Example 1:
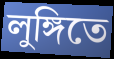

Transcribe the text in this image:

লুঙ্গিতে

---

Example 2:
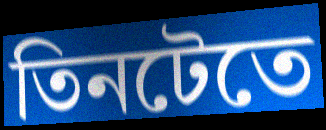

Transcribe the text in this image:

তিনটেতে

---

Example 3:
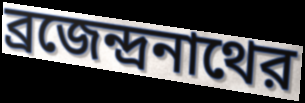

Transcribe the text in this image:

ব্রজেন্দ্রনাথের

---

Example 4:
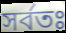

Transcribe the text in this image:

সর্বতঃ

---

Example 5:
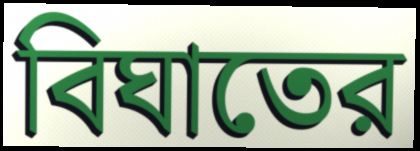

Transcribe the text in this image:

বিঘাতের